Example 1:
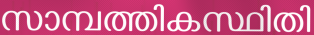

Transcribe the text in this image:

സാമ്പത്തികസ്ഥിതി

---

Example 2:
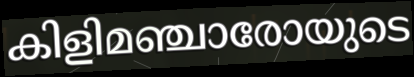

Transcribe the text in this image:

കിളിമഞ്ചാരോയുടെ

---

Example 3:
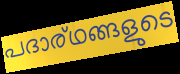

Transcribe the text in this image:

പദാര്ഥങ്ങളുടെ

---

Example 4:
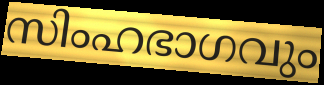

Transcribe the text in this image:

സിംഹഭാഗവും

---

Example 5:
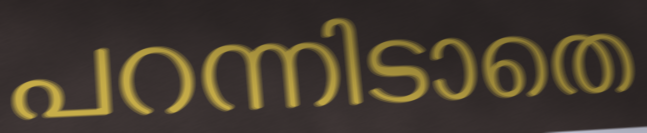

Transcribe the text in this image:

പറന്നിടാതെ